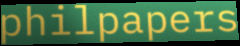
philpapers